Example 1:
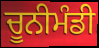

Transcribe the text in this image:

ਚੂਨੀਮੰਡੀ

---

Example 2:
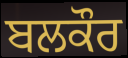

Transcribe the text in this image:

ਬਲਕੌਰ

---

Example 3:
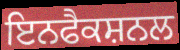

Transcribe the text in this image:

ਇਨਫੈਕਸ਼ਨਲ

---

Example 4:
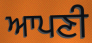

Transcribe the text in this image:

ਆਪਣੀ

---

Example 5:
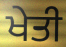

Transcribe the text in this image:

ਖੇਤੀ